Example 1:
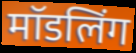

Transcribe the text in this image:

मॉडलिंग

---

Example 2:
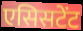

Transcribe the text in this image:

एसिसटेंट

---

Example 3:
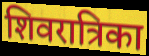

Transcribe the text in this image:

शिवरात्रिका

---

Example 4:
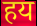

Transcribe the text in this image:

हय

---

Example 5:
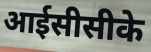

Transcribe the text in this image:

आईसीसीके